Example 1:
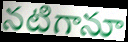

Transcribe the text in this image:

నటిగానూ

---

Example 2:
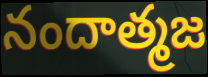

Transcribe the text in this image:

నందాత్మజ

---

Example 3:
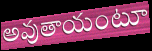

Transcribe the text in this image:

అవుతాయంటూ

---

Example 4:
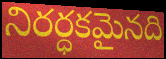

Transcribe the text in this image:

నిరర్ధకమైనది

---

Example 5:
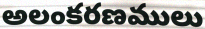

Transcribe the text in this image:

అలంకరణములు